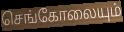
செங்கோலையும்